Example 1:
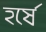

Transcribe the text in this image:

হর্ষে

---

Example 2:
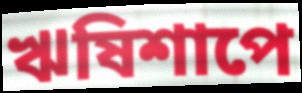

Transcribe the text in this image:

ঋষিশাপে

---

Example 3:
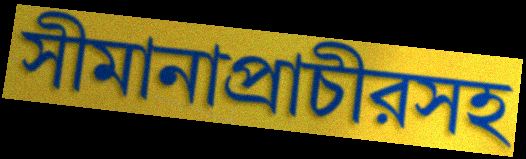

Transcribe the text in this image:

সীমানাপ্রাচীরসহ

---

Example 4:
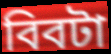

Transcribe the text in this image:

বিবটা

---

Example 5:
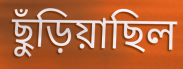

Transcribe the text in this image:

ছুঁড়িয়াছিল